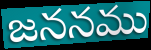
జననము